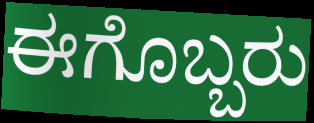
ಈಗೊಬ್ಬರು